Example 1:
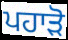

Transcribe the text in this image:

ਪਹਾੜੋ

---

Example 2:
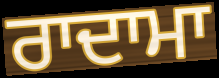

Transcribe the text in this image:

ਰਾਦਾਮਾ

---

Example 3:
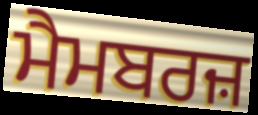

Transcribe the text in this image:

ਮੈਮਬਰਜ਼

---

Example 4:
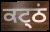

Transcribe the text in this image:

ਕਟ੍ਠਂ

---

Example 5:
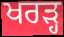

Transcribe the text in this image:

ਖਰੜ੍ਹ